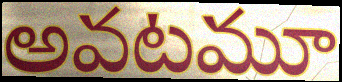
అవటమూ